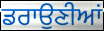
ਡਰਾਉਣੀਆਂ